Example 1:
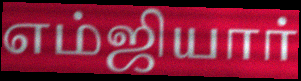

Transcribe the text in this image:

எம்ஜியார்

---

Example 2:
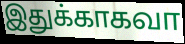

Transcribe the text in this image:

இதுக்காகவா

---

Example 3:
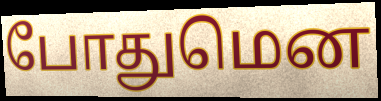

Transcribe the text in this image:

போதுமென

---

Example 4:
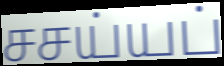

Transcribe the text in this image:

சசய்யப்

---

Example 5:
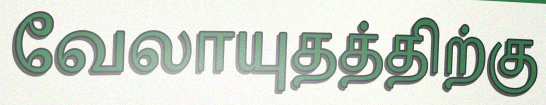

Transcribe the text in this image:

வேலாயுதத்திற்கு